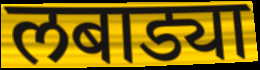
लबाड्या